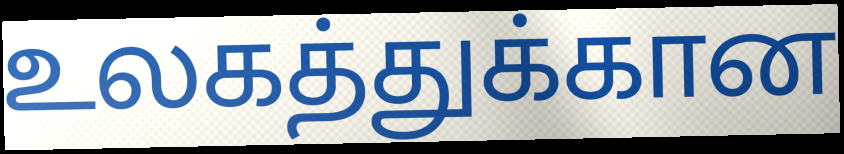
உலகத்துக்கான